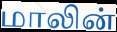
மாலின்